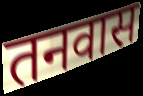
तनवास